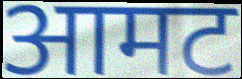
आमट